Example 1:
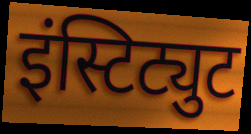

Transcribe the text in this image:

इंस्टिट्युट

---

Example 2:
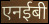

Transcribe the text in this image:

एनईबी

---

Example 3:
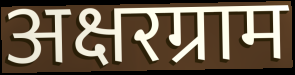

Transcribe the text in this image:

अक्षरग्राम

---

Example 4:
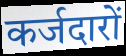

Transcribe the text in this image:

कर्जदारों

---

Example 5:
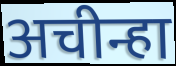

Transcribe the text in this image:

अचीन्हा